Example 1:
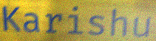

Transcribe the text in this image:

Karishu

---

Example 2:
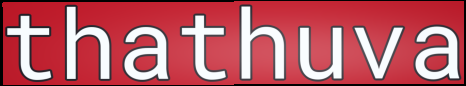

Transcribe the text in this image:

thathuva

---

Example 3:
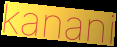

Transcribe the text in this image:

kanani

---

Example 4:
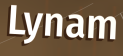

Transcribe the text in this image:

Lynam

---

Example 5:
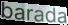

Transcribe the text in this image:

barada